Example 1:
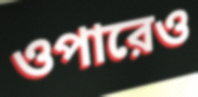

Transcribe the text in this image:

ওপারেও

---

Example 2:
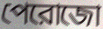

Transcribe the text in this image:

পেরোজো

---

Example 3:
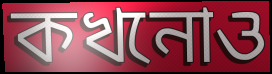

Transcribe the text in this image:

কখনোও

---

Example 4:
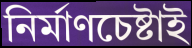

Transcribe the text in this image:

নির্মাণচেষ্টাই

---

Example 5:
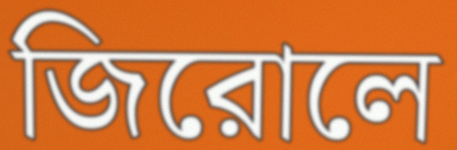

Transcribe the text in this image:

জিরোলে